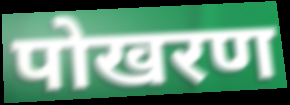
पोखरण